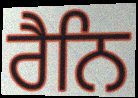
ਰੈਨਿ